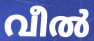
വീൽ